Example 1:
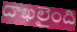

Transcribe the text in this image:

దాఖలైంది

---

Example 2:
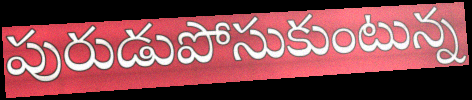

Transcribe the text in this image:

పురుడుపోసుకుంటున్న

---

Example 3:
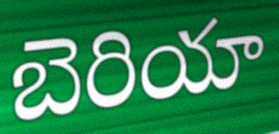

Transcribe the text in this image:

బెరియా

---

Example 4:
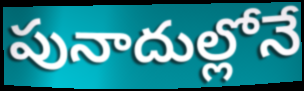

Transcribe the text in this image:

పునాదుల్లోనే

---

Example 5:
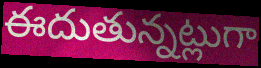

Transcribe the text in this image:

ఈదుతున్నట్లుగా